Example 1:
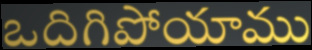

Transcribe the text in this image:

ఒదిగిపోయాము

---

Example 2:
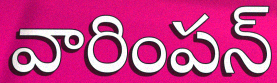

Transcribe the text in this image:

వారింపన్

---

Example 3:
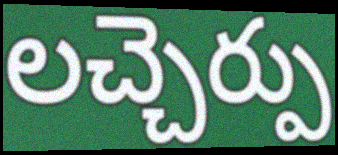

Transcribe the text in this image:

లచ్చెర్పు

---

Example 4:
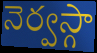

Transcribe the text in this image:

నెర్వస్గా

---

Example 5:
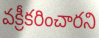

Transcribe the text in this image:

వక్రీకరించారని